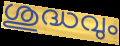
ശുദ്ധവും